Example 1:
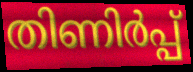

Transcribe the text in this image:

തിണിർപ്പ്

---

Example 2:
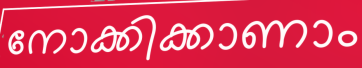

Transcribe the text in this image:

നോക്കിക്കാണാം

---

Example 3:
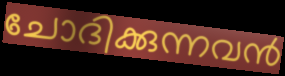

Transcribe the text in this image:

ചോദിക്കുന്നവൻ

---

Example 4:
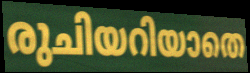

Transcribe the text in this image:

രുചിയറിയാതെ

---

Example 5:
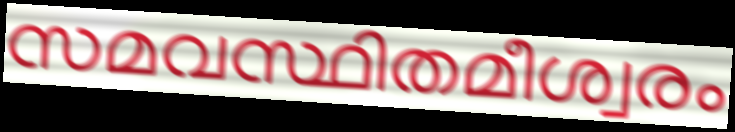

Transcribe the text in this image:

സമവസ്ഥിതമീശ്വരം